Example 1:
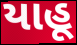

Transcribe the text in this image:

યાહૂ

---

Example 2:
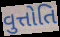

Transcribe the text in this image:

વુત્તોતિ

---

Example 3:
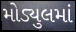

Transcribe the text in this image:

મોડ્યુલમાં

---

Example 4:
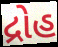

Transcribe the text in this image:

દ્રોહ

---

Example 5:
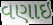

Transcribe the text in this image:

વણાઇ